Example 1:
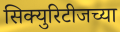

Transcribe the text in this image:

सिक्युरिटीजच्या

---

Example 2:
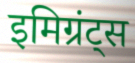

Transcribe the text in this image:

इमिग्रंट्स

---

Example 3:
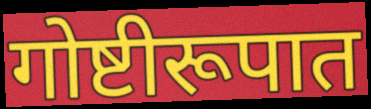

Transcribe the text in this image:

गोष्टीरूपात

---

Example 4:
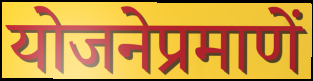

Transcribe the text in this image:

योजनेप्रमाणें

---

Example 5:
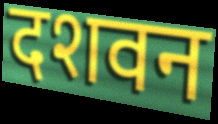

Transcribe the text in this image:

दशवन